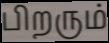
பிறரும்